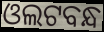
ଓଲଟବନ୍ଧ